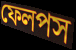
ফেলপস